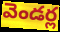
వెండర్ల